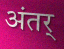
अंतर्